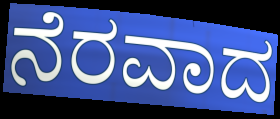
ನೆರವಾದ